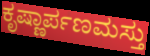
ಕೃಷ್ಣಾರ್ಪಣಮಸ್ತು